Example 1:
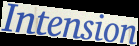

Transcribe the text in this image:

Intension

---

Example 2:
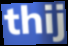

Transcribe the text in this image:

thij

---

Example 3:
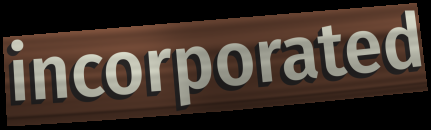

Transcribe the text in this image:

incorporated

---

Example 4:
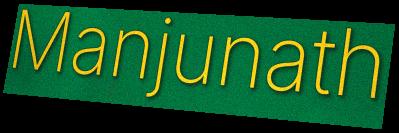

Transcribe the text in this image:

Manjunath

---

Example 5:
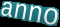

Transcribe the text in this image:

anno